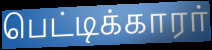
பெட்டிக்காரர்